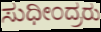
ಸುಧೀಂದ್ರರು